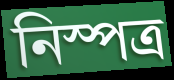
নিস্পত্র